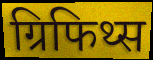
ग्रिफिथ्स